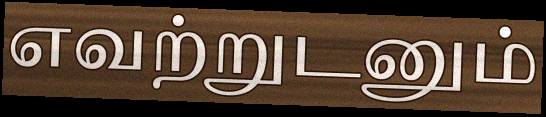
எவற்றுடனும்